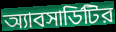
অ্যাবসার্ডিটির